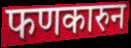
फणकारुन